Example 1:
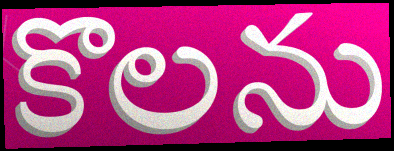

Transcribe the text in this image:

కొలను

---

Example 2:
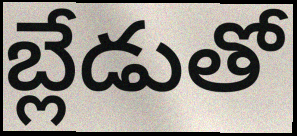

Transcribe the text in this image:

బ్లేడుతో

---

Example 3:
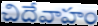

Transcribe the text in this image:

చిదేవాహం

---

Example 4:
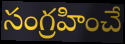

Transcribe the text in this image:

సంగ్రహించే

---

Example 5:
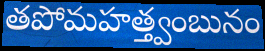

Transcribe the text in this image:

తపోమహత్త్వంబునం